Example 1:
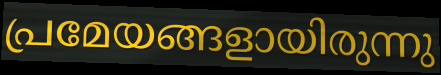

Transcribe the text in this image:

പ്രമേയങ്ങളായിരുന്നു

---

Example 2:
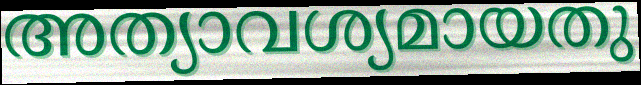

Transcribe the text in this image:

അത്യാവശ്യമായതു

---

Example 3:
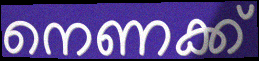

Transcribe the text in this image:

നെണക്ക്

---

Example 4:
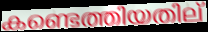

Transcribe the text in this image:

കണ്ടെത്തിയതില്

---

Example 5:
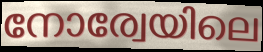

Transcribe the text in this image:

നോര്വേയിലെ